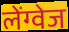
लेंग्वेज